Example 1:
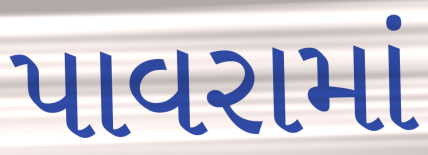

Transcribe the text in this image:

પાવરામાં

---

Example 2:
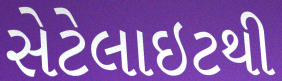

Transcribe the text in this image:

સેટેલાઇટથી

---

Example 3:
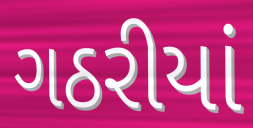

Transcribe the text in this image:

ગઠરીયાં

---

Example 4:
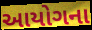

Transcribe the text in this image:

આયોગના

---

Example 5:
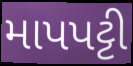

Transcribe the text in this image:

માપપટ્ટી